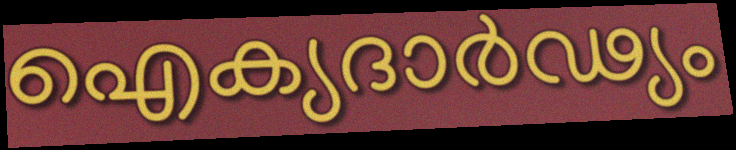
ഐക്യദാർഢ്യം